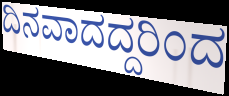
ದಿನವಾದದ್ದರಿಂದ